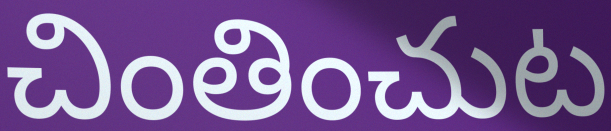
చింతించుట